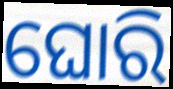
ଘୋରି